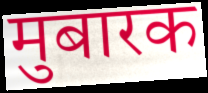
मुबारक